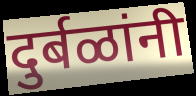
दुर्बळांनी